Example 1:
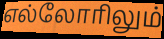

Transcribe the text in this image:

எல்லோரிலும்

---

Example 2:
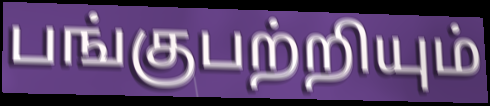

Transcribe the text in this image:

பங்குபற்றியும்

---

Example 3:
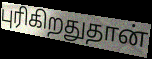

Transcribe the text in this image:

புரிகிறதுதான்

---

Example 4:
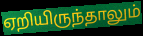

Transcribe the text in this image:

ஏறியிருந்தாலும்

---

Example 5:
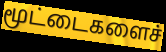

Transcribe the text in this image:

மூட்டைகளைச்